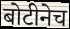
बोटीनेच